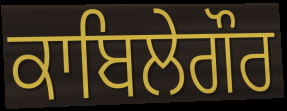
ਕਾਬਿਲੇਗੌਰ